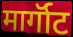
मार्गॉट